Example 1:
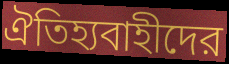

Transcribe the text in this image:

ঐতিহ্যবাহীদের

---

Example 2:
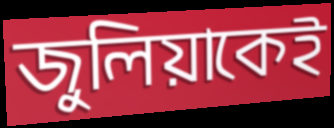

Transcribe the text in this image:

জুলিয়াকেই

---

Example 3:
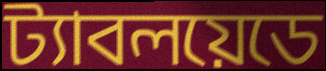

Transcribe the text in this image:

ট্যাবলয়েডে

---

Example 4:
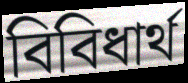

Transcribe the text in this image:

বিবিধার্থ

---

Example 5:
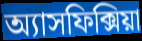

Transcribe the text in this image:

অ্যাসফিক্সিয়া